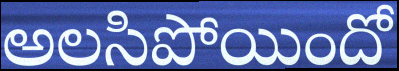
అలసిపోయిందో